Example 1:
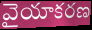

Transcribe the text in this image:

వైయాకరణ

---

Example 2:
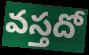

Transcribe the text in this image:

వస్తదో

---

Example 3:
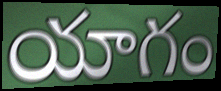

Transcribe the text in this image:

యాగం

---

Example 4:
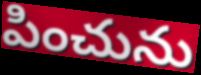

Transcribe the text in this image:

పించును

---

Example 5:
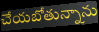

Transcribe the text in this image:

చేయబోతున్నాను